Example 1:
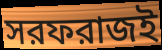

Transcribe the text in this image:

সরফরাজই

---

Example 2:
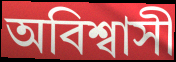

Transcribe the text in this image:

অবিশ্বাসী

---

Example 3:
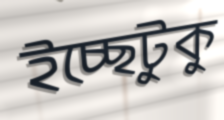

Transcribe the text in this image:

ইচ্ছেটুকু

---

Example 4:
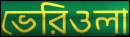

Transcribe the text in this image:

ভেরিওলা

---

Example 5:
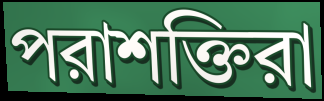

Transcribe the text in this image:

পরাশক্তিরা